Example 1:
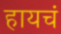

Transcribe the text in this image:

हायचं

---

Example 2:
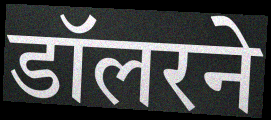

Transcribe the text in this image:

डॉलरने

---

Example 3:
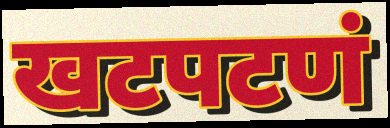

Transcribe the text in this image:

खटपटणं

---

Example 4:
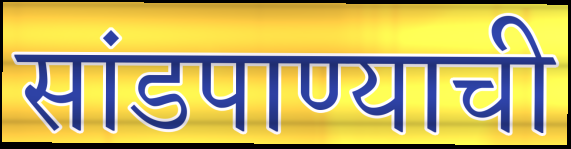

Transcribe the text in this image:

सांडपाण्याची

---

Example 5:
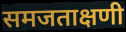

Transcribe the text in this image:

समजताक्षणी